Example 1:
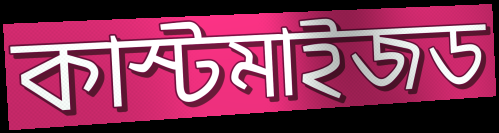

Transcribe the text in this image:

কাস্টমাইজড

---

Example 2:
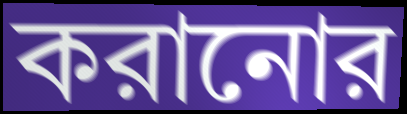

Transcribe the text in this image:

করানোর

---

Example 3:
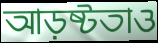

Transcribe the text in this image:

আড়ষ্টতাও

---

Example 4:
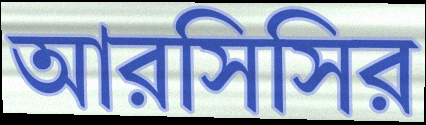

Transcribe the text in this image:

আরসিসির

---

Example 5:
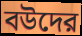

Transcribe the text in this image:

বউদের